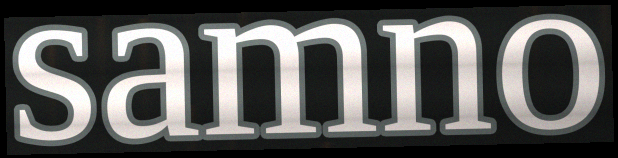
samno